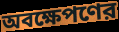
অবক্ষেপণের